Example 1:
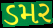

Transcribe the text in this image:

ડમર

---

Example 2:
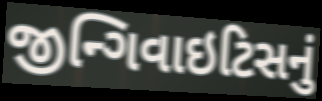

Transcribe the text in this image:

જીન્ગિવાઇટિસનું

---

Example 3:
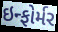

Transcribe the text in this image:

ઇન્ફોર્મર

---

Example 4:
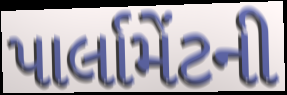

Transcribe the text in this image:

પાર્લામેંટની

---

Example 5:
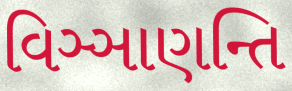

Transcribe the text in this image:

વિઞ્ઞાણન્તિ